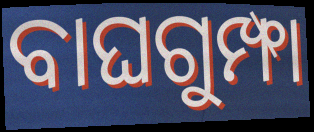
ବାଘଗୁମ୍ଫା